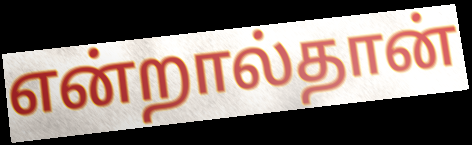
என்றால்தான்